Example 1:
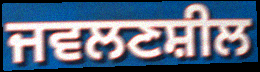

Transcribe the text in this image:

ਜਵਲਣਸ਼ੀਲ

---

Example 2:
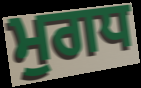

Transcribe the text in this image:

ਮੁਗਧ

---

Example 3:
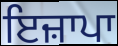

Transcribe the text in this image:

ਇਜ਼ਾਪਾ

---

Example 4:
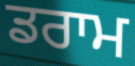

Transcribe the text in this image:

ਡਰਾਮ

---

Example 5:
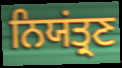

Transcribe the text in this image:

ਨਿਯਂਤ੍ਰਣ